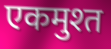
एकमुश्‍त